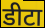
डीटा